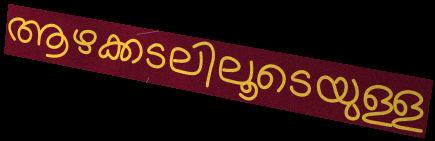
ആഴക്കടലിലൂടെയുള്ള